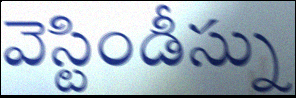
వెస్టిండీస్ను